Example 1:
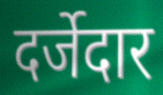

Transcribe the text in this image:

दर्जेदार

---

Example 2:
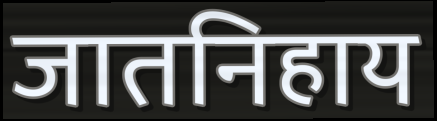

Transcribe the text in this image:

जातनिहाय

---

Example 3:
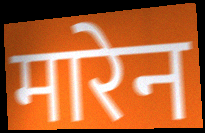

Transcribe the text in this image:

मारेन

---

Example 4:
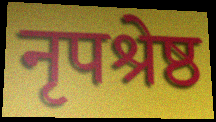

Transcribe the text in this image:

नृपश्रेष्ठ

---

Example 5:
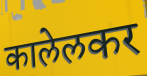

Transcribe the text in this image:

कालेलकर